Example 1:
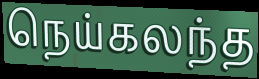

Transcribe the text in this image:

நெய்கலந்த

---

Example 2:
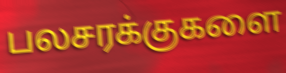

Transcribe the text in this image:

பலசரக்குகளை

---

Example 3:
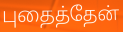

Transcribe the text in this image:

புதைத்தேன்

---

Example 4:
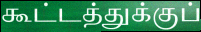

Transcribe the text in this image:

கூட்டத்துக்குப்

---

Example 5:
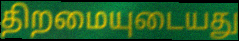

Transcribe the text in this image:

திறமையுடையது